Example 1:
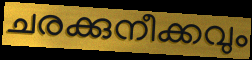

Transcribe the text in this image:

ചരക്കുനീക്കവും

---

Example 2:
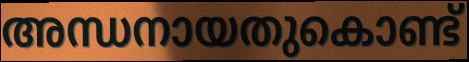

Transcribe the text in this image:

അന്ധനായതുകൊണ്ട്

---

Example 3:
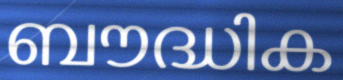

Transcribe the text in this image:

ബൗദ്ധിക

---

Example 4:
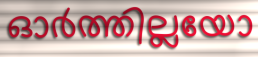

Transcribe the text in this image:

ഓർത്തില്ലയോ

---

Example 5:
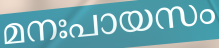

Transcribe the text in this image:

മനഃപായസം